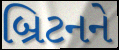
બ્રિટનને